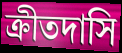
ক্রীতদাসি